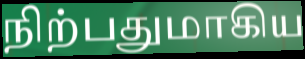
நிற்பதுமாகிய